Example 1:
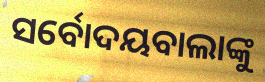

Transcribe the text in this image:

ସର୍ବୋଦୟବାଲାଙ୍କୁ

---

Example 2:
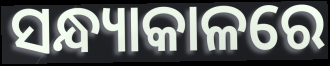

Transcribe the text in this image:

ସନ୍ଧ୍ୟାକାଳରେ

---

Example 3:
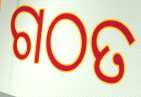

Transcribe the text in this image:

ଗଠତ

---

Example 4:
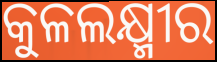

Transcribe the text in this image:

କୁଳଲକ୍ଷ୍ମୀର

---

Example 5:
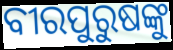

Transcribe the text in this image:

ବୀରପୁରୁଷଙ୍କୁ